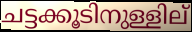
ചട്ടക്കൂടിനുള്ളില്